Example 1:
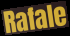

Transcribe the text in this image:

Rafale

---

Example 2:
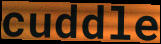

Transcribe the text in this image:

cuddle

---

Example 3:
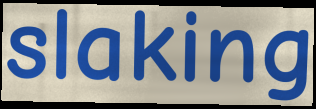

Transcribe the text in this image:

slaking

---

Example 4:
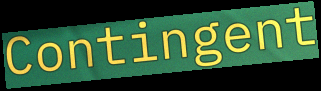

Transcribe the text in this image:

Contingent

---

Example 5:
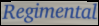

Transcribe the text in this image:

Regimental